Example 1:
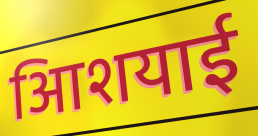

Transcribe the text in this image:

आिशयाई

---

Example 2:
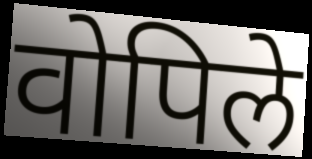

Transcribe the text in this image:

वोपिले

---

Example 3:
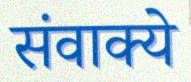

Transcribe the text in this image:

संवाक्ये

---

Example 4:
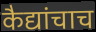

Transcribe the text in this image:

कैद्यांचाच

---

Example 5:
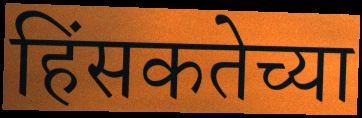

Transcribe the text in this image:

हिंसकतेच्या